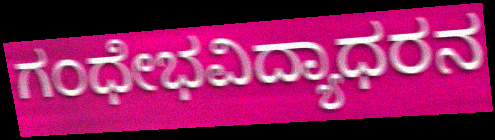
ಗಂಧೇಭವಿದ್ಯಾಧರನ